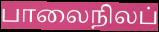
பாலைநிலப்